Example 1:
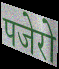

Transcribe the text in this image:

पजेरो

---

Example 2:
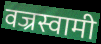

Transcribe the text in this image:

वज्रस्वामी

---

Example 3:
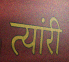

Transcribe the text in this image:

त्यांरी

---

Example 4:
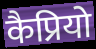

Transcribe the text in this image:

कैप्रियो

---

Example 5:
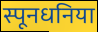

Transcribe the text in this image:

स्पूनधनिया